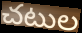
చటుల